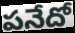
పనేదో